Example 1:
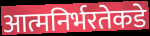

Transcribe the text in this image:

आत्मनिर्भरतेकडे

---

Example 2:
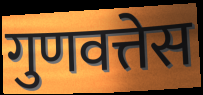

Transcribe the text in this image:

गुणवत्तेस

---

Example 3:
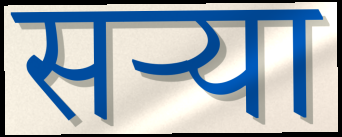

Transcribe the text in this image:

सऱ्या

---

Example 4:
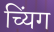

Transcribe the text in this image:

च्यिंग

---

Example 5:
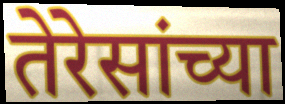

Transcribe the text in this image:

तेरेसांच्या